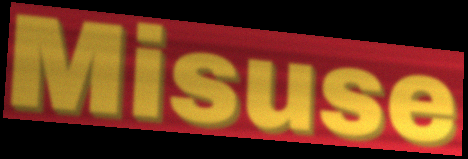
Misuse